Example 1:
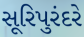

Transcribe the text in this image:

સૂરિપુરંદરે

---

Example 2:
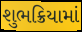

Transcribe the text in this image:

શુભક્રિયામાં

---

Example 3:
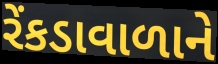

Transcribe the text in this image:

રેંકડાવાળાને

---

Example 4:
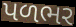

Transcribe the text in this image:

પળભર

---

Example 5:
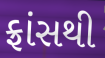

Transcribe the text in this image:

ફ્રાંસથી